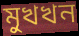
মুখখন